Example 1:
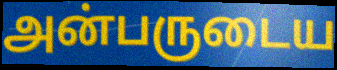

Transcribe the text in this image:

அன்பருடைய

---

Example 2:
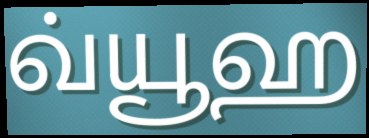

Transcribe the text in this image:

வ்யூஹ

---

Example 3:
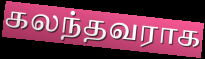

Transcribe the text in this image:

கலந்தவராக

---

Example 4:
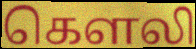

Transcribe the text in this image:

கௌலி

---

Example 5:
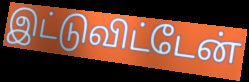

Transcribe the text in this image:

இட்டுவிட்டேன்